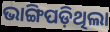
ଭାଙ୍ଗିପଡ଼ିଥିଲା